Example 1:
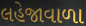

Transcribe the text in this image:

લહેજાવાળા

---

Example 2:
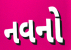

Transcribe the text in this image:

નવનો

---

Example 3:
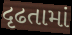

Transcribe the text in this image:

દૃઢતામાં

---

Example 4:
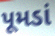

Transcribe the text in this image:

પૂમડાં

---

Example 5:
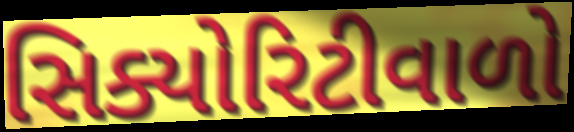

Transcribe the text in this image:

સિક્યોરિટીવાળો